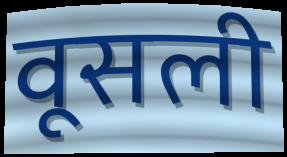
वूसली